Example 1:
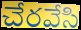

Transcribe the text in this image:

చేరవేసి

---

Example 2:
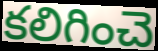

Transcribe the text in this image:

కలిగించె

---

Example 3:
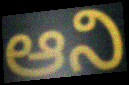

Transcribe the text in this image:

ఆని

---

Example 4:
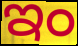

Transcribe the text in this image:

ఇం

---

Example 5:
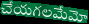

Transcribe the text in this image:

చేయగలమేమో